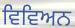
ਵਿਵਿਅਨ